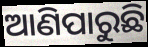
ଆଣିପାରୁଛି